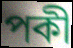
পকী